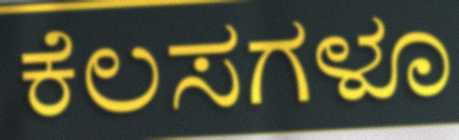
ಕೆಲಸಗಳೂ